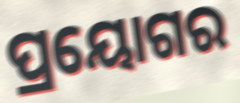
ପ୍ରୟୋଗର